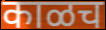
काळच